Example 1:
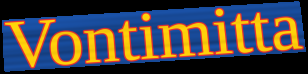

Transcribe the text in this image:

Vontimitta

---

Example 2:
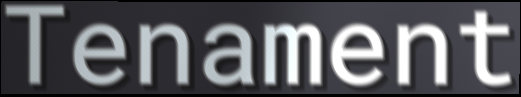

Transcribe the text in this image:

Tenament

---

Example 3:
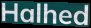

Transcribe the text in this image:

Halhed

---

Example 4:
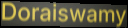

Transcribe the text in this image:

Doraiswamy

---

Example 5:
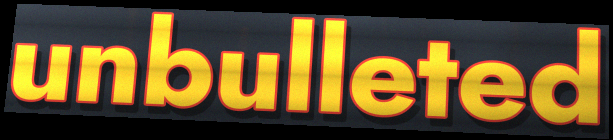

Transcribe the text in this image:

unbulleted